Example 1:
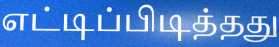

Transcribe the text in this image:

எட்டிப்பிடித்தது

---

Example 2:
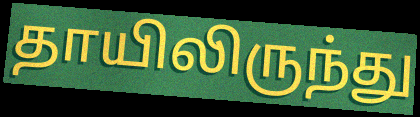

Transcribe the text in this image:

தாயிலிருந்து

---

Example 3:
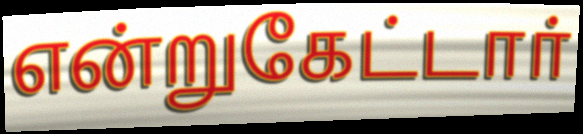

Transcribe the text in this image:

என்றுகேட்டார்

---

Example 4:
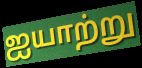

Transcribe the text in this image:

ஐயாற்று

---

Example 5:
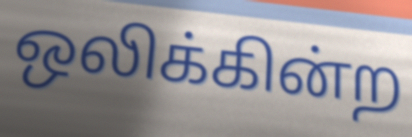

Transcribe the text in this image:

ஒலிக்கின்ற